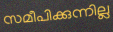
സമീപിക്കുന്നില്ല